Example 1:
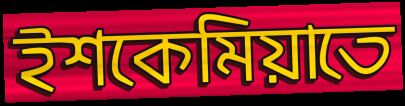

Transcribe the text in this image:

ইশকেমিয়াতে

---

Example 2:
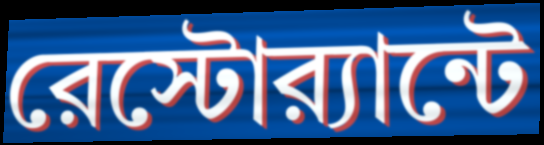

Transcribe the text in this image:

রেস্টোর‍্যান্টে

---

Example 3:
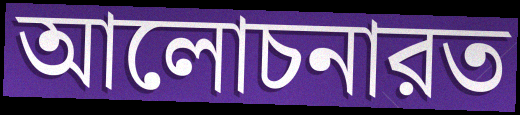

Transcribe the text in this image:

আলোচনারত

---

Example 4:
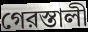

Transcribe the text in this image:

গেরস্তালী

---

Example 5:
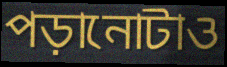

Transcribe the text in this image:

পড়ানোটাও